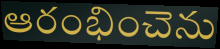
ఆరంభించెను